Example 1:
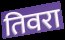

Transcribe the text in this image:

तिवरा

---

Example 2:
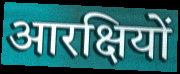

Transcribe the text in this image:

आरक्षियों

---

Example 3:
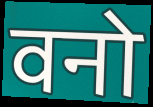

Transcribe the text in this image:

वनो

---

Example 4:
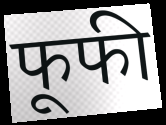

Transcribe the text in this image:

फूफी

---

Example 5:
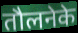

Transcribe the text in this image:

तौलनेके